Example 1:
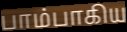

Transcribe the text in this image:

பாம்பாகிய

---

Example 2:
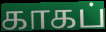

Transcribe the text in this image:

காகப்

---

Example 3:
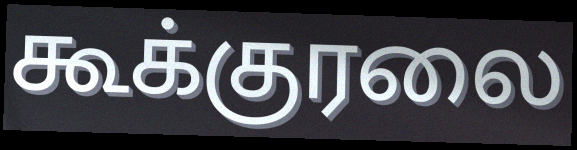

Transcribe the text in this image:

கூக்குரலை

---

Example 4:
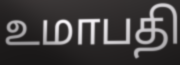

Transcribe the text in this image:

உமாபதி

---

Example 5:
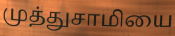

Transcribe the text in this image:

முத்துசாமியை